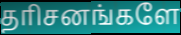
தரிசனங்களே